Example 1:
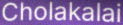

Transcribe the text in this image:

Cholakalai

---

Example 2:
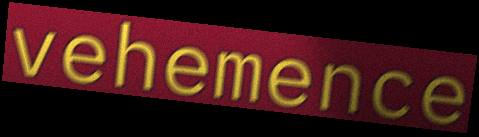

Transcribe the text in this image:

vehemence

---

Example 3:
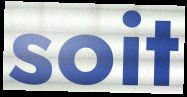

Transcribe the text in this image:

soit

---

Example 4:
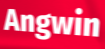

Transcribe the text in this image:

Angwin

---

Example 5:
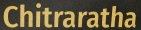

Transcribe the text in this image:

Chitraratha